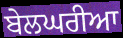
ਬੇਲਘਰੀਆ